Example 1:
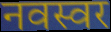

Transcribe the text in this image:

नवस्वर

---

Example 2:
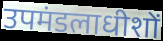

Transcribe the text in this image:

उपमंडलाधीशों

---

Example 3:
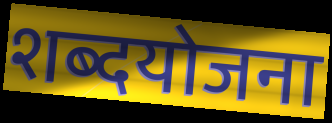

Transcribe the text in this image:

शब्दयोजना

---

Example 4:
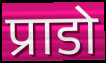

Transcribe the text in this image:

प्राडो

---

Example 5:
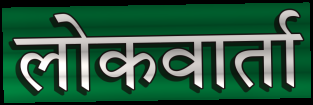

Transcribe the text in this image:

लोकवार्ता